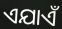
ଏଯାଏଁ